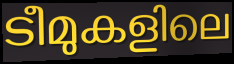
ടീമുകളിലെ